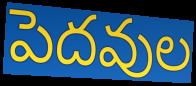
పెదవుల